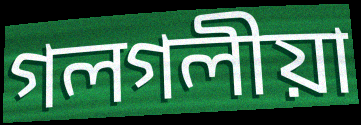
গলগলীয়া